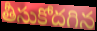
తీసుకోదగిన